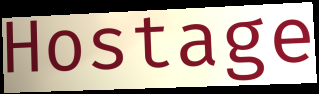
Hostage